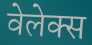
वेलेक्स